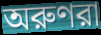
অরুণরা